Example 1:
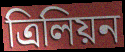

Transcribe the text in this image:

ত্ৰিলিয়ন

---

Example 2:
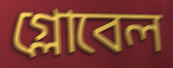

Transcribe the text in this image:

গ্লোবেল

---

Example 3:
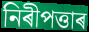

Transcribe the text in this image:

নিৰীপত্তাৰ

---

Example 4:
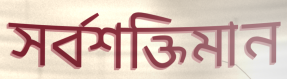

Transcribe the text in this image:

সৰ্বশক্তিমান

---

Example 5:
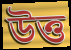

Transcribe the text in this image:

উত্ত